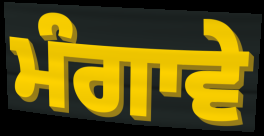
ਮੰਗਾਵੇ